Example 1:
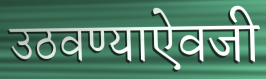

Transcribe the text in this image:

उठवण्याऐवजी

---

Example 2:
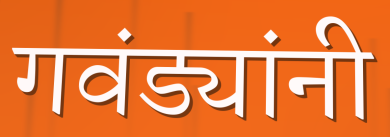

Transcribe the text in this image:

गवंड्यांनी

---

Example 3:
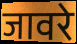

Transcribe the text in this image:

जावरे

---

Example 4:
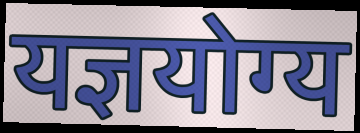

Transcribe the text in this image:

यज्ञयोग्य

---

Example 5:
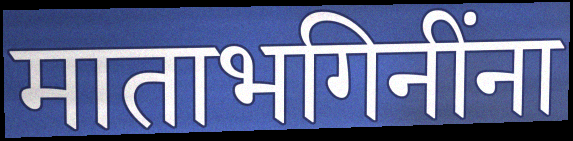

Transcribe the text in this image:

माताभगिनींना